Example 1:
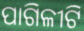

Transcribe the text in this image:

ପାଗିଳୀଟି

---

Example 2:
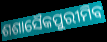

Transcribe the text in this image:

ଶଶାସୈକପୁରୀମିବ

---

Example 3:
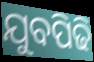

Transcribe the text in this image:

ଯୁବପିଢି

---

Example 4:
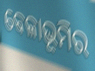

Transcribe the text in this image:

ବେଳାଭୂମିର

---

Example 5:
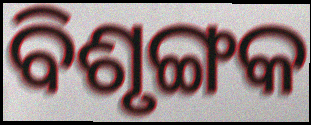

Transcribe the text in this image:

ବିଶୃଙ୍ଗକ